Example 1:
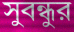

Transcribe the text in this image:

সুবন্ধুর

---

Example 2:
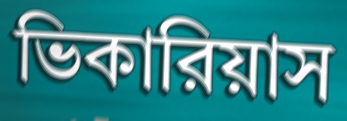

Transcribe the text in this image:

ভিকারিয়াস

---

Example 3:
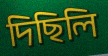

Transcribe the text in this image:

দিছিলি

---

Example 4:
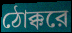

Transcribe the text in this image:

ঠোক্করে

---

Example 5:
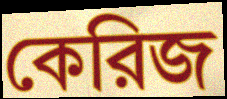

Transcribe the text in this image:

কেরিজ